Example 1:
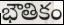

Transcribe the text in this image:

భౌతికం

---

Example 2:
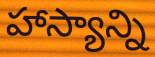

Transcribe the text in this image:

హాస్యాన్ని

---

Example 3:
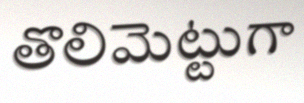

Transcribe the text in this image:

తొలిమెట్టుగా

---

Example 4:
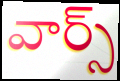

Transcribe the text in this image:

వార్స్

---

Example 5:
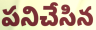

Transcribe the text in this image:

పనిచేసిన